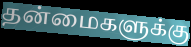
தன்மைகளுக்கு